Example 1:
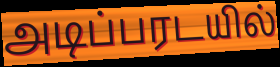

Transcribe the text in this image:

அடிப்பரடயில்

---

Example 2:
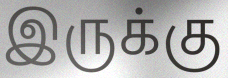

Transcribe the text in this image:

இருக்கு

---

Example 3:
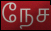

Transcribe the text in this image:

நேச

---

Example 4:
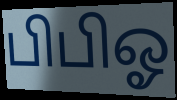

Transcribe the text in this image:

பிபிஓ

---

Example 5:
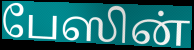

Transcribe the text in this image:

பேஸின்